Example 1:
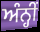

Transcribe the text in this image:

ਅੰਨ੍ਹੀਂ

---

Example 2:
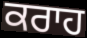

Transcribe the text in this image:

ਕਰਾਹ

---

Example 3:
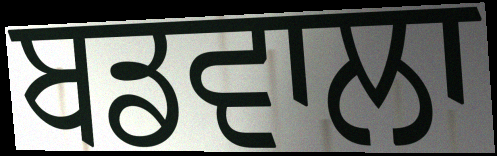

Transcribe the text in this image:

ਬਡਵਾਲਾ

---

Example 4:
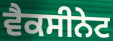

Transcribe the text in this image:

ਵੈਕਸੀਨੇਟ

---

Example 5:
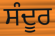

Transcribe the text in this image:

ਸੰਦੂਰ